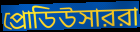
প্রোডিউসাররা